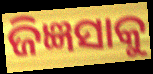
ଜିଜ୍ଞସାକୁ